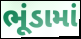
ભૂંડામાં